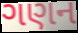
ગણન